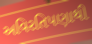
અવિરતિપણાથી